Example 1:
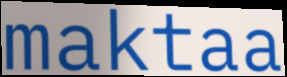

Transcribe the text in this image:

maktaa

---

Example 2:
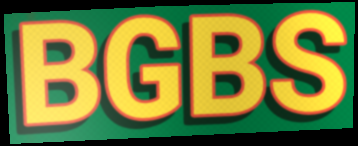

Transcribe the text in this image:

BGBS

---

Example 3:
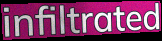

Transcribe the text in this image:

infiltrated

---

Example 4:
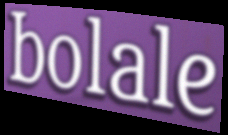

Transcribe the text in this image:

bolale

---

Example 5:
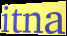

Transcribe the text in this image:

itna